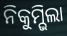
ନିକୁମ୍ଭିଲା